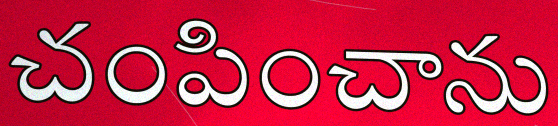
చంపించాను